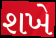
શખે